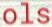
ols